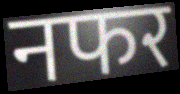
नफर